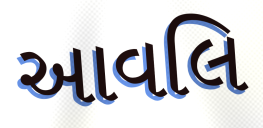
આવલિ